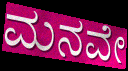
ಮನವೇ